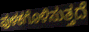
ಪುಳಕಗೊಳಿಸುತ್ತದೆ